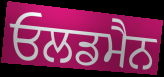
ਓਲਡਮੈਨ